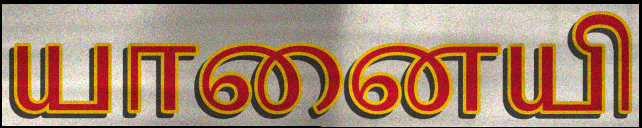
யானையி